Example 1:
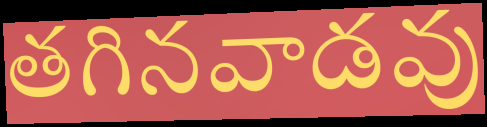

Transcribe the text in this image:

తగినవాడవు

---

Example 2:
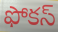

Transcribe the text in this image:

ఫోకస్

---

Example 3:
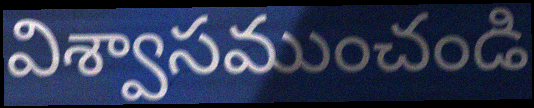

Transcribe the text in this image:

విశ్వాసముంచండి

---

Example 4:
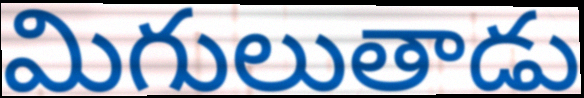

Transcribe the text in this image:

మిగులుతాడు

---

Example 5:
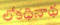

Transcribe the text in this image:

లోకధినాథ